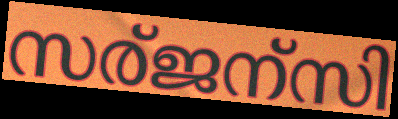
സര്ജന്സി